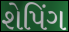
શેપિંગ